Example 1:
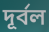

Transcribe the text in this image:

দূর্বল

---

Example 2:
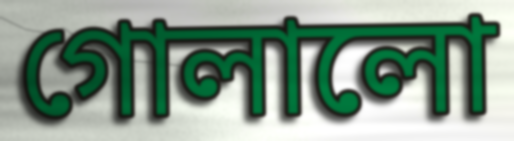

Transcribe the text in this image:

গোলালো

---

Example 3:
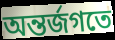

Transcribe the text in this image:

অন্তর্জগতে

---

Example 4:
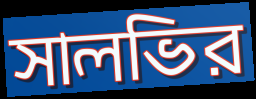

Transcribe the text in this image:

সালভির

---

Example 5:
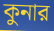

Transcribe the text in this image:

কুনার